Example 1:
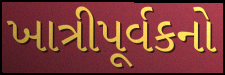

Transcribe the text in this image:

ખાત્રીપૂર્વકનો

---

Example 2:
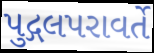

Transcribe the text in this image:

પુદ્ગલપરાવર્તે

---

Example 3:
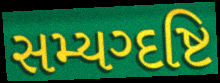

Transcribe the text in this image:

સમ્યગ્દષ્ટિ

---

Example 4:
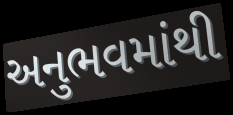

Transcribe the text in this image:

અનુભવમાંથી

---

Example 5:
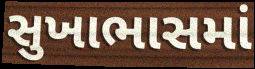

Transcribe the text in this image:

સુખાભાસમાં